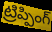
ట్రిప్పింగ్